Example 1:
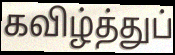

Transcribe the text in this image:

கவிழ்த்துப்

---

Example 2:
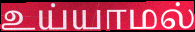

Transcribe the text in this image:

உய்யாமல்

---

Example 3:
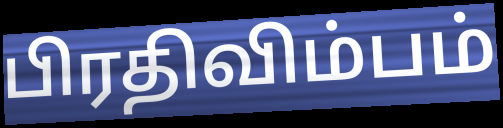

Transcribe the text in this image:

பிரதிவிம்பம்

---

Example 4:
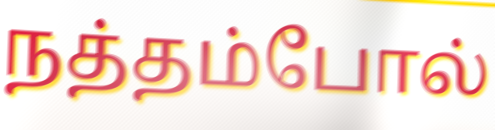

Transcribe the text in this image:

நத்தம்போல்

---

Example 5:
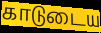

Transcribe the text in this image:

காடுடைய